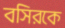
বসিরকে